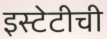
इस्टेटीची